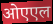
ओएएल